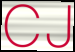
CJ